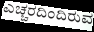
ಎಚ್ಚರದಿಂದಿರುವ